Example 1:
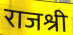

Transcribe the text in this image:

राजश्री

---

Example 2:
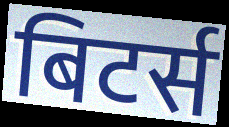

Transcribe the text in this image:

बिटर्स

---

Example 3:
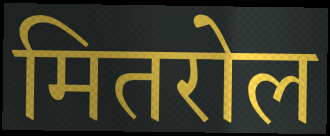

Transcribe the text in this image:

मितरोल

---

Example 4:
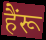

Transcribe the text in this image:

हैंरू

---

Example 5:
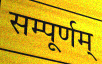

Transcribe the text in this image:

सम्पूर्णम्